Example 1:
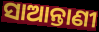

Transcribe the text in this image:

ସାଆନ୍ତାଣୀ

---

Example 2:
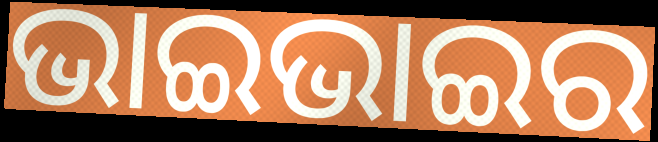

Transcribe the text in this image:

ଭାଇଭାଇର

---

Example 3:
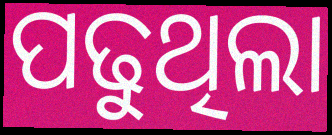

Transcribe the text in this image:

ପଢୁଥିଲା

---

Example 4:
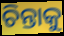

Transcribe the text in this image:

ଚିନ୍ତାକୁ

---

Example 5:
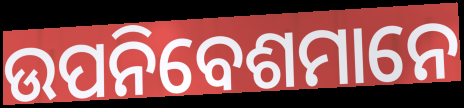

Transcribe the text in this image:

ଉପନିବେଶମାନେ